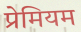
प्रेमियम